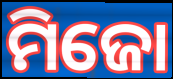
ମିଜୋ